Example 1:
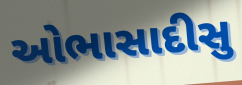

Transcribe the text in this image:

ઓભાસાદીસુ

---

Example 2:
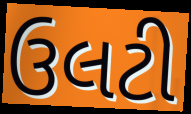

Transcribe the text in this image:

ઉલટી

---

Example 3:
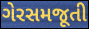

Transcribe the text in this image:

ગેરસમજૂતી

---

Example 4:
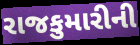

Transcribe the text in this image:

રાજકુમારીની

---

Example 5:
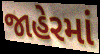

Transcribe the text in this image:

જાહેરમાં